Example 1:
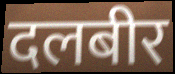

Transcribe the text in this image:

दलबीर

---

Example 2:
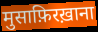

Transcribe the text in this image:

मुसाफ़िरख़ाना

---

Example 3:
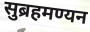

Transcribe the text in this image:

सुब्रहमण्यन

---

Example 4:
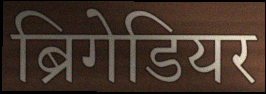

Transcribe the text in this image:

ब्रिगेडियर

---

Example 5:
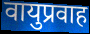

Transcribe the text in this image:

वायुप्रवाह